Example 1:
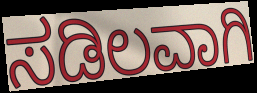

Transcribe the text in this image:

ಸಡಿಲವಾಗಿ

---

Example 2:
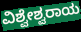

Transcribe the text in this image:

ವಿಶ್ವೇಶ್ವರಾಯ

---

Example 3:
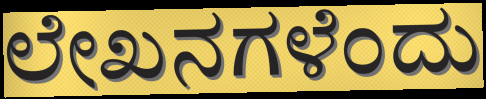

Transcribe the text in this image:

ಲೇಖನಗಳೆಂದು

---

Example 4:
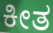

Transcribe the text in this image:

ಕೀತ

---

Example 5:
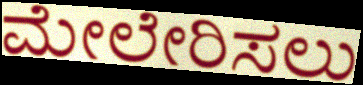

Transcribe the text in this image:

ಮೇಲೇರಿಸಲು